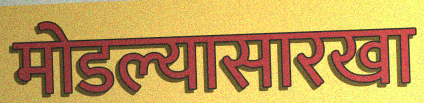
मोडल्यासारखा